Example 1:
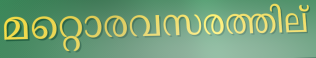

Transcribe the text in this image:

മറ്റൊരവസരത്തില്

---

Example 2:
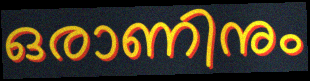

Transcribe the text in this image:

ഒരാണിനും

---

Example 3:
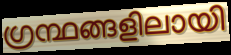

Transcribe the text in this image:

ഗ്രന്ഥങ്ങളിലായി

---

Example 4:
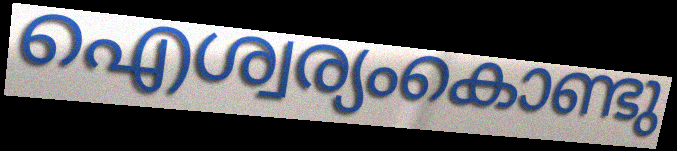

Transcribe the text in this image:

ഐശ്വര്യംകൊണ്ടു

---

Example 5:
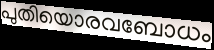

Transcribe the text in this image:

പുതിയൊരവബോധം